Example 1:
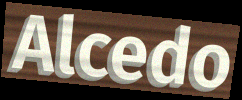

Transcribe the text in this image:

Alcedo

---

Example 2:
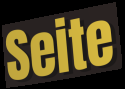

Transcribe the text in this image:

Seite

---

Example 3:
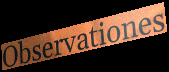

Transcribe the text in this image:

Observationes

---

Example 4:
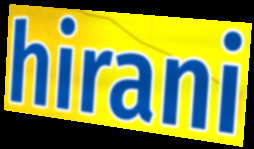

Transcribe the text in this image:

hirani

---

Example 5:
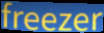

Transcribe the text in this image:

freezer